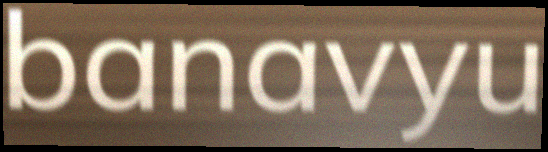
banavyu